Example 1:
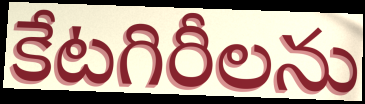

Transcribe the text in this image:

కేటగిరీలను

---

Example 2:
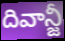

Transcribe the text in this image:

దివాన్జీ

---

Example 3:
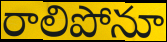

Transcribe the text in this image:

రాలిపోనూ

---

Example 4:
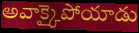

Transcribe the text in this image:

అవాక్కైపోయాడు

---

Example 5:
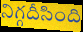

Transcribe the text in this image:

నిగ్గదీసింది